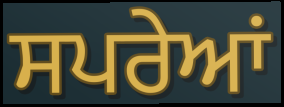
ਸਪਰੇਆਂ